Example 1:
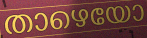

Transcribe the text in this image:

താഴെയോ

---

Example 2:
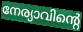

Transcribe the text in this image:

നേര്യാവിന്റെ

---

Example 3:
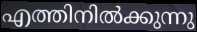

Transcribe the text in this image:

എത്തിനിൽക്കുന്നു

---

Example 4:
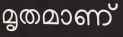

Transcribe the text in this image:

മൃതമാണ്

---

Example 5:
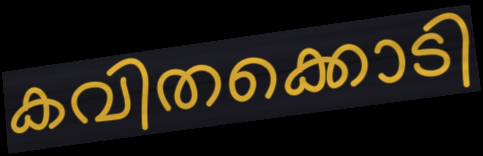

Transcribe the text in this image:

കവിതക്കൊടി